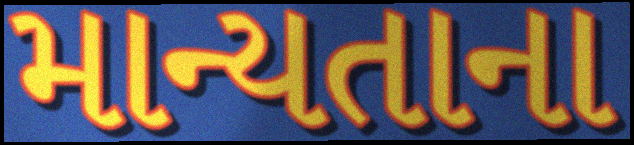
માન્યતાના